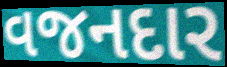
વજનદાર